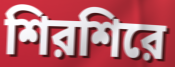
শিরশিরে